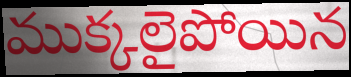
ముక్కలైపోయిన